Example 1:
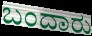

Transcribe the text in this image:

ಬಂದಾರು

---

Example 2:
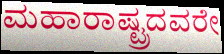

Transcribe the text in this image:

ಮಹಾರಾಷ್ಟ್ರದವರೇ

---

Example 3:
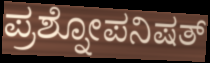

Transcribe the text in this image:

ಪ್ರಶ್ನೋಪನಿಷತ್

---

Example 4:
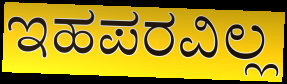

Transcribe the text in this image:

ಇಹಪರವಿಲ್ಲ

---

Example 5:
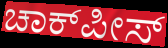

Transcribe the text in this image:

ಚಾಕ್‍ಪೀಸ್